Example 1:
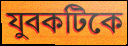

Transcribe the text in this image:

যুবকটিকে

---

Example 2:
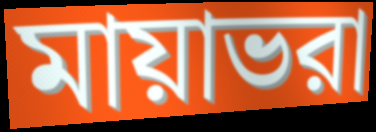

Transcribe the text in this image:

মায়াভরা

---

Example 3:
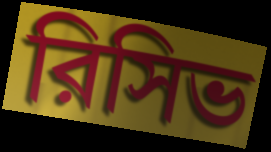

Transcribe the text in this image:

রিসিভ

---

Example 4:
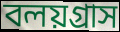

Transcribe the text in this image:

বলয়গ্রাস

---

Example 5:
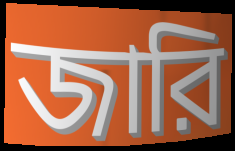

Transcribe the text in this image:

জারি